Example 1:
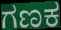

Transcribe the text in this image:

ಗಣಕ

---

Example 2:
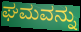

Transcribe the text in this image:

ಘಮವನ್ನು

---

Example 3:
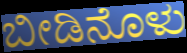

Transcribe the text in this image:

ಬೀಡಿನೊಳು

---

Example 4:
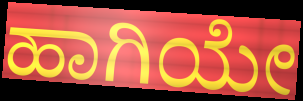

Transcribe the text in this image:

ಹಾಗಿಯೇ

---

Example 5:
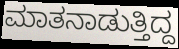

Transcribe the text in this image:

ಮಾತನಾಡುತ್ತಿದ್ದ